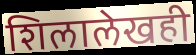
शिलालेखही